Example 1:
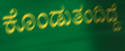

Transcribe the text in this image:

ಕೊಂಡುತಂದಿದ್ದೆ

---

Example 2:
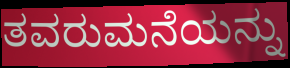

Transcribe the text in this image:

ತವರುಮನೆಯನ್ನು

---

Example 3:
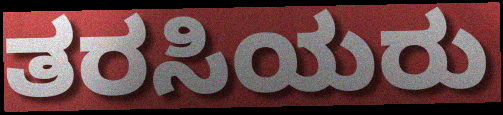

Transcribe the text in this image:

ತರಸಿಯರು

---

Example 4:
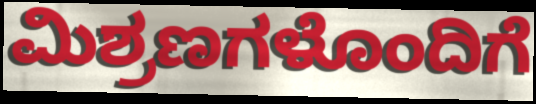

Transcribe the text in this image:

ಮಿಶ್ರಣಗಳೊಂದಿಗೆ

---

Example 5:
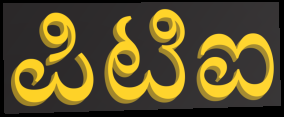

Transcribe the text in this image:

ಪಿಟಿಐ